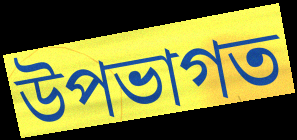
উপভাগত